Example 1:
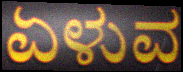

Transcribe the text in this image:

ಏಳುವ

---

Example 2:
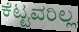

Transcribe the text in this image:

ಕೆಟ್ಟವರಿಲ್ಲ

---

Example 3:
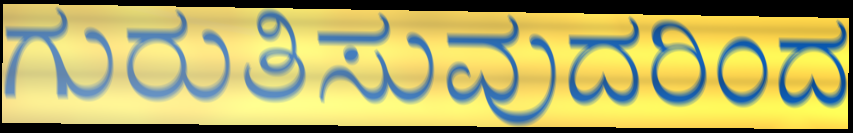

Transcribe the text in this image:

ಗುರುತಿಸುವುದರಿಂದ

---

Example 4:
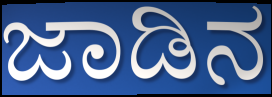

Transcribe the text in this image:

ಜಾಡಿನ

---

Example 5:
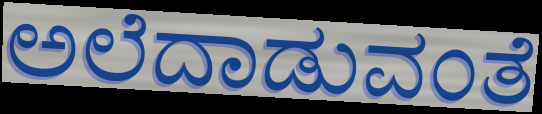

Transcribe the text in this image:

ಅಲೆದಾಡುವಂತೆ